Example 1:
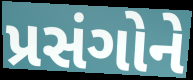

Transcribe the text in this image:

પ્રસંગોને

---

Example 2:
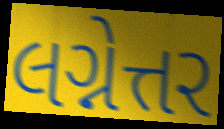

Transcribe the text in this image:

લગ્નેત્તર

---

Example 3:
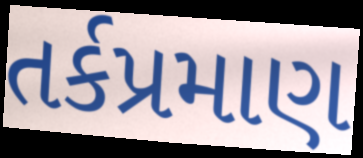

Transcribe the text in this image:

તર્કપ્રમાણ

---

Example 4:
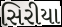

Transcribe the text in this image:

સિરીયા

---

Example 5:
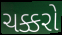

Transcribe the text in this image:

ચક્કરો